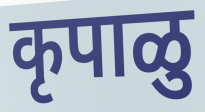
कृपाळु